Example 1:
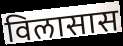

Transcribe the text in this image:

विलासास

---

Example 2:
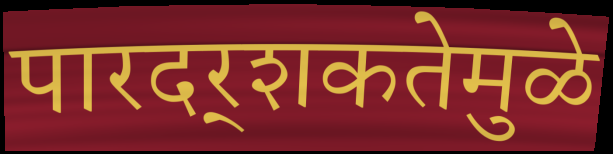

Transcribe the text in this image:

पारदर्शकतेमुळे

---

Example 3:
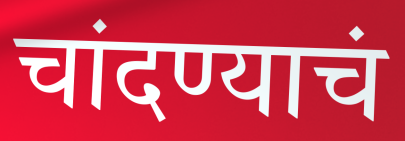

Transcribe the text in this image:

चांदण्याचं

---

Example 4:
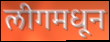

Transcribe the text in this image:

लीगमधून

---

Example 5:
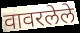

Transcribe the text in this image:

वावरलेले